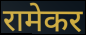
रामेकर